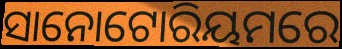
ସାନୋଟୋରିୟମରେ